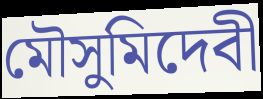
মৌসুমিদেবী